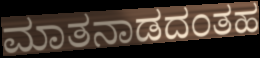
ಮಾತನಾಡದಂತಹ